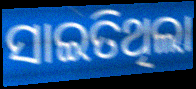
ସାଇତିଥିଲା